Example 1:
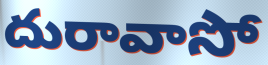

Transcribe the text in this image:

దురావాసో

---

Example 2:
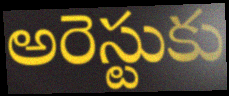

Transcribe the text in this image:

అరెస్టుకు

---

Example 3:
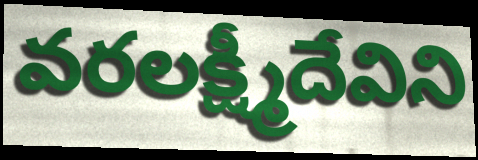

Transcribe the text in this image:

వరలక్ష్మీదేవిని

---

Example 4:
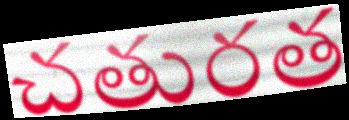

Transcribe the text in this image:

చతురత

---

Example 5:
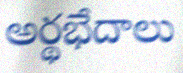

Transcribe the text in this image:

అర్థభేదాలు